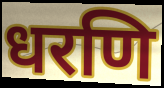
धरणि